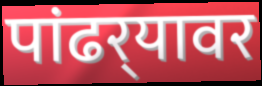
पांढर्‍यावर